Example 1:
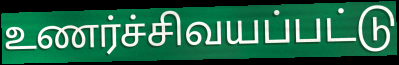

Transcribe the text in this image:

உணர்ச்சிவயப்பட்டு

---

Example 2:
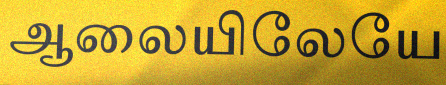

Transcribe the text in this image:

ஆலையிலேயே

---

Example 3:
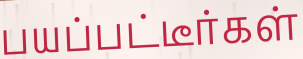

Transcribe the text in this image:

பயப்பட்டீர்கள்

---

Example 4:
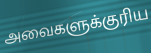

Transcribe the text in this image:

அவைகளுக்குரிய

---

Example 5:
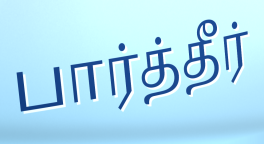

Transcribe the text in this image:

பார்த்தீர்